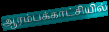
ஆரம்பக்காட்சியில்